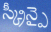
స్క్రీన్పై